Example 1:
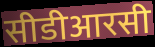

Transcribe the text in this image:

सीडीआरसी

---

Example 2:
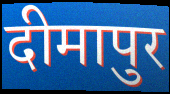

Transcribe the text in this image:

दीमापुर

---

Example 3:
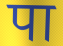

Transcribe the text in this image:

पा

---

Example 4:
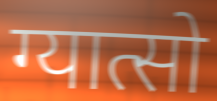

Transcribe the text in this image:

ग्यात्सो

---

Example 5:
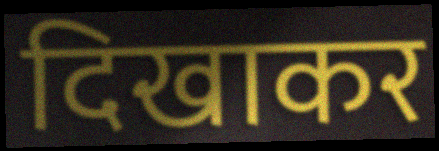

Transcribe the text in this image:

दिखाकर